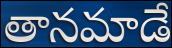
తానమాడే